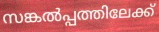
സങ്കൽപ്പത്തിലേക്ക്